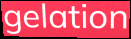
gelation